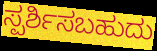
ಸ್ಪರ್ಶಿಸಬಹುದು